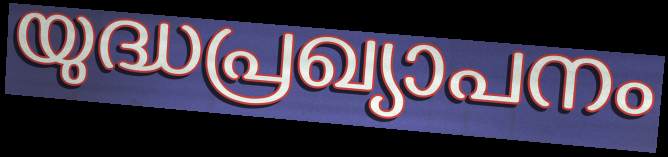
യുദ്ധപ്രഖ്യാപനം